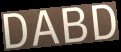
DABD